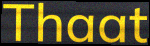
Thaat